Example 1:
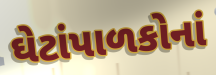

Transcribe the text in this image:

ઘેટાંપાળકોનાં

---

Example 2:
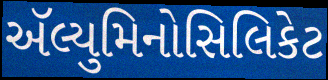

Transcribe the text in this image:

ઍલ્યુમિનોસિલિકેટ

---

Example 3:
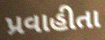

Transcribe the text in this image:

પ્રવાહીતા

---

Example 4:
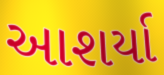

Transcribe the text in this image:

આશર્યા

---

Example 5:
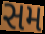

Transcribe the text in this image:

સમ